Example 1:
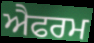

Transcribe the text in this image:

ਐਫਰਮ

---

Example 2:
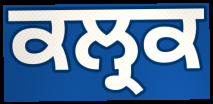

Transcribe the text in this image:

ਕਲ੍ਰਕ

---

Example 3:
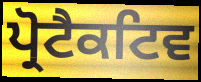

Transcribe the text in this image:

ਪ੍ਰੋਟੈਕਟਿਵ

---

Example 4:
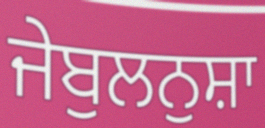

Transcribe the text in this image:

ਜੇਬੁਲਨੁਸ਼ਾ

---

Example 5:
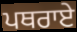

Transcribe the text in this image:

ਪਥਰਾਏ